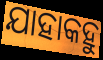
ଯାହାକହୁ